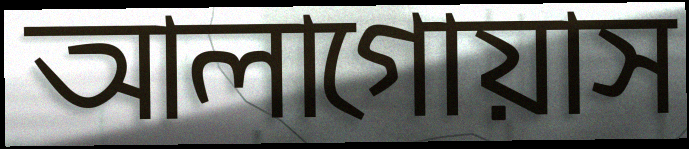
আলাগোয়াস